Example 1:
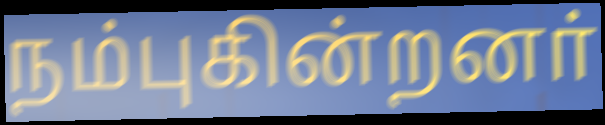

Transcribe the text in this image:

நம்புகின்றனர்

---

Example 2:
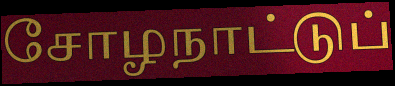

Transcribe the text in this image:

சோழநாட்டுப்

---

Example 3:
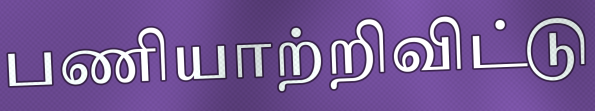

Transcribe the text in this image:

பணியாற்றிவிட்டு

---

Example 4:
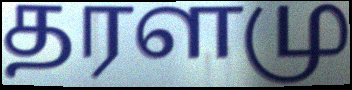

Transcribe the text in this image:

தரளமு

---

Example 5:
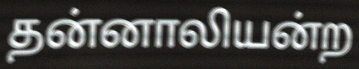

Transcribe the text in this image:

தன்னாலியன்ற